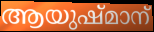
ആയുഷ്മാന്